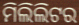
ମିଲିଲିଟର